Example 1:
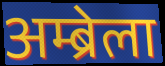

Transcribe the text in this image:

अम्‍ब्रेला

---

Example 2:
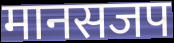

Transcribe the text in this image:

मानसजप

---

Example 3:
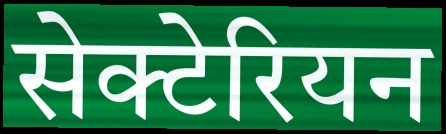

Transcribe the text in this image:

सेक्टेरियन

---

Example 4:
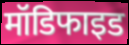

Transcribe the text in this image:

मॉडिफाइड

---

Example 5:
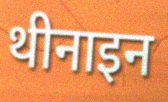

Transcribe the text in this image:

थीनाइन